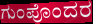
ಗುಂಪೊಂದರ